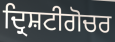
ਦ੍ਰਿਸ਼ਟੀਗੋਚਰ